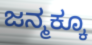
ಜನ್ಮಕ್ಕೂ